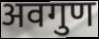
अवगुण